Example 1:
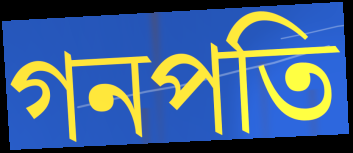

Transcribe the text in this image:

গনপতি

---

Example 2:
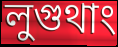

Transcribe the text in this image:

লুগুথাং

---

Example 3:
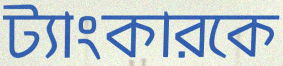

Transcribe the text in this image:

ট্যাংকারকে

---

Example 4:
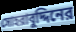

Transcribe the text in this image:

সোহরাবুদ্দিনের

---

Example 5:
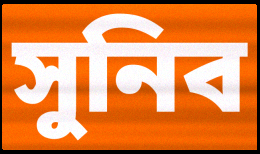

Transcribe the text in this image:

সুনিব